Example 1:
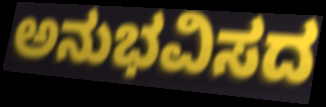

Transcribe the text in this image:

ಅನುಭವಿಸದ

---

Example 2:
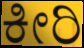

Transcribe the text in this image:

ಕೀರಿ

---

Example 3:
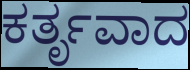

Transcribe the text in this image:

ಕರ್ತೃವಾದ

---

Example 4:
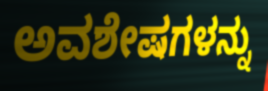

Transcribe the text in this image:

ಅವಶೇಷಗಳನ್ನು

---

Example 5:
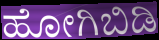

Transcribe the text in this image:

ಹೋಗಿಬಿಡಿ